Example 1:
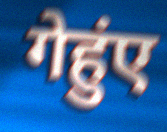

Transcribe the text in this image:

गेहुंए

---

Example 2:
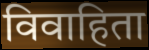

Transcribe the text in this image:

विवाहिता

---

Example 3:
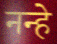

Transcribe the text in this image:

नन्हे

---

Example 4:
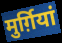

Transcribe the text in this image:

मुर्ग़ियां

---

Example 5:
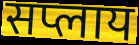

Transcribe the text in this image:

सप्लाय